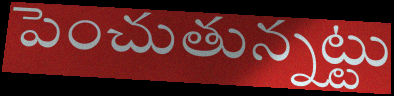
పెంచుతున్నట్టు